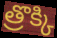
త్రొక్కి